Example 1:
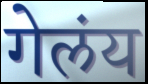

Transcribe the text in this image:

गेलंय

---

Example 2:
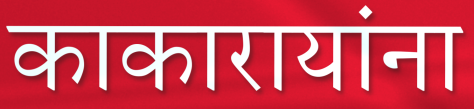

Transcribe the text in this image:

काकारायांना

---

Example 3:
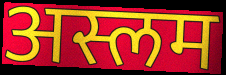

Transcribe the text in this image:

अस्लम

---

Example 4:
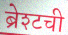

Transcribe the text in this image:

ब्रेश्टची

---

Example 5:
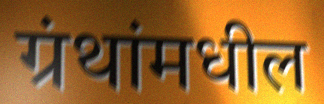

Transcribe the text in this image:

ग्रंथांमधील